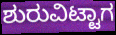
ಶುರುವಿಟ್ಟಾಗ